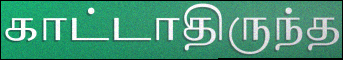
காட்டாதிருந்த